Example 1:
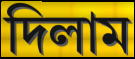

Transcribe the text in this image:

দিলাম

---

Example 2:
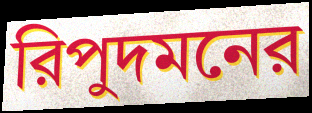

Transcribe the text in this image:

রিপুদমনের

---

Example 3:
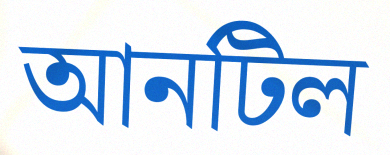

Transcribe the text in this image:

আনটিল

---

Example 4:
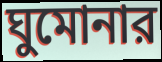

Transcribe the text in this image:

ঘুমোনার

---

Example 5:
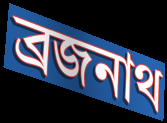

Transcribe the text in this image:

ব্রজনাথ